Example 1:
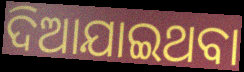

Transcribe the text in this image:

ଦିଆଯାଇଥବା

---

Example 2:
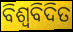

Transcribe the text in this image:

ବିଶ୍ବବିଦିତ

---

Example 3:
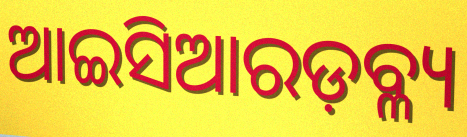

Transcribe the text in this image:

ଆଇସିଆରଡ଼ବ୍ଳ୍ୟ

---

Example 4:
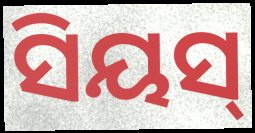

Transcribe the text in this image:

ସିୟସ୍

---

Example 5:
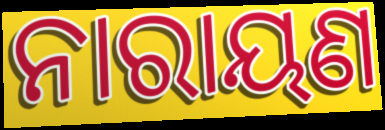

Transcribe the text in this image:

ନାରାୟଣ